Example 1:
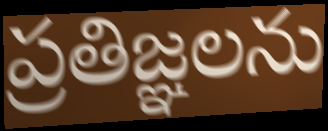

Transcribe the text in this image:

ప్రతిజ్ఞలను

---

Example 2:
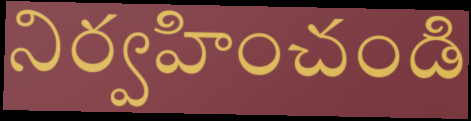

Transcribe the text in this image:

నిర్వహించండి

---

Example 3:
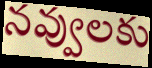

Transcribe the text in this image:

నవ్వులకు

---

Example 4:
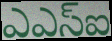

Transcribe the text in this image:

ఎఎస్ఐ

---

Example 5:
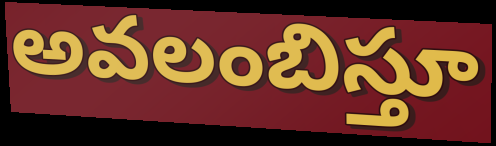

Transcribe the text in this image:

అవలంబిస్తూ